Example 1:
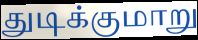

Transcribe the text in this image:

துடிக்குமாறு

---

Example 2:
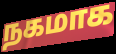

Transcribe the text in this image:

நகமாக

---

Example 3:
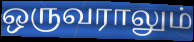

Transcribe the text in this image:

ஒருவராலும்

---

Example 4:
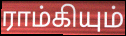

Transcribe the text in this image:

ராம்கியும்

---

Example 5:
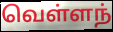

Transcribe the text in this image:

வெள்ளந்